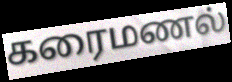
கரைமணல்